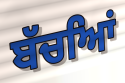
ਬੱਚਆਿਂ